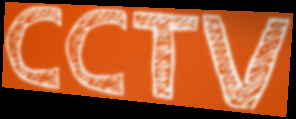
CCTV